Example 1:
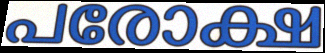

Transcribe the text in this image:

പരോക്ഷ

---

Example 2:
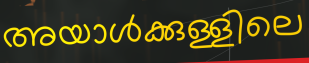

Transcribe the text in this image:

അയാൾക്കുള്ളിലെ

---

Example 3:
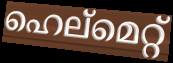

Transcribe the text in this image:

ഹെല്മെറ്റ്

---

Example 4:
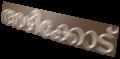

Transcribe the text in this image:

അഴീക്കോട്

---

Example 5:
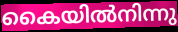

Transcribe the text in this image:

കൈയിൽനിന്നു